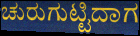
ಚುರುಗುಟ್ಟಿದಾಗ